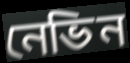
নেভিন